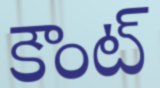
కౌంట్